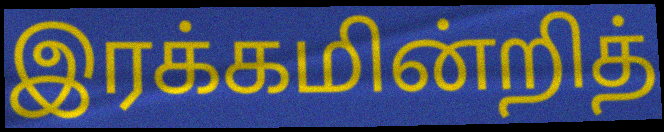
இரக்கமின்றித்